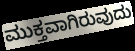
ಮುಕ್ತವಾಗಿರುವುದು